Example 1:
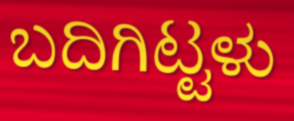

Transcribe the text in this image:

ಬದಿಗಿಟ್ಟಳು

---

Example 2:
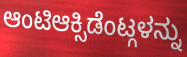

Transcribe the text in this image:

ಆಂಟಿಆಕ್ಸಿಡೆಂಟ್ಗಳನ್ನು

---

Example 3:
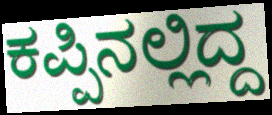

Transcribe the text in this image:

ಕಪ್ಪಿನಲ್ಲಿದ್ದ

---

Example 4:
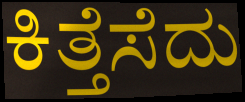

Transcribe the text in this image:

ಕಿತ್ತೆಸೆದು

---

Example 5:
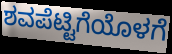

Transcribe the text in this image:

ಶವಪೆಟ್ಟಿಗೆಯೊಳಗೆ